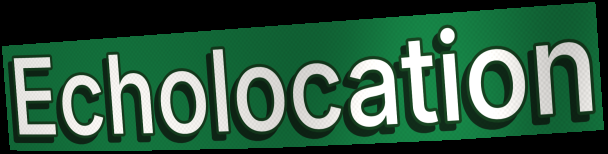
Echolocation